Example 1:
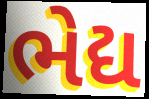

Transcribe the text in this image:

ભેદ્ય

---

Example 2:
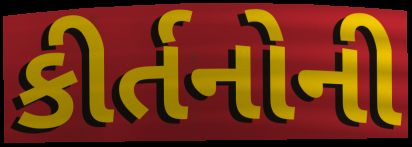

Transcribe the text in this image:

કીર્તનોની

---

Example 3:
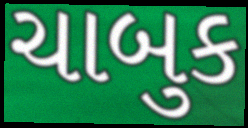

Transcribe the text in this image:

ચાબુક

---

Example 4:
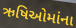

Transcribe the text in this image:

ઋષિઓમાંના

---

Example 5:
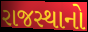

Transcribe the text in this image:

રાજસ્થાનો